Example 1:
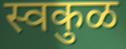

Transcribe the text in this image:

स्वकुळ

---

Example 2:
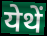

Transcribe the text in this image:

येथें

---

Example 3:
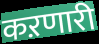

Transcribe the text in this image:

कऱणारी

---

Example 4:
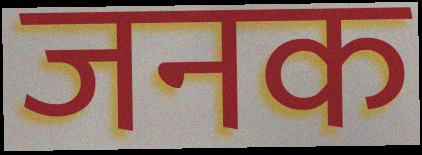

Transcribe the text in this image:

जनक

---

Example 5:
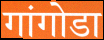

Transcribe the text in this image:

गांगोडा